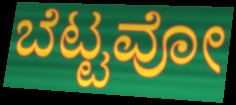
ಬೆಟ್ಟವೋ